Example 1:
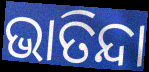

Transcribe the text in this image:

ଭାତିନ୍ଦା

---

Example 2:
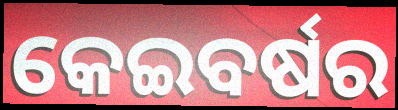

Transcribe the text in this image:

କେଇବର୍ଷର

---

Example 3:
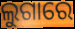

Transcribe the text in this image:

ଲୁଗାରେ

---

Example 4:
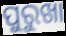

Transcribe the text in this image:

ପୁରୁଖା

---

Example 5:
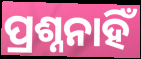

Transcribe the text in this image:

ପ୍ରଶ୍ନନାହିଁ